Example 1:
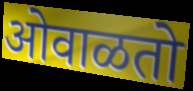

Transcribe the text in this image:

ओवाळतो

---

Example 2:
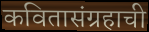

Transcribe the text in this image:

कवितासंग्रहाची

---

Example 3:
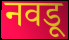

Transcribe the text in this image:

नवडू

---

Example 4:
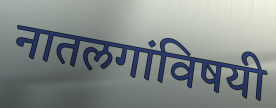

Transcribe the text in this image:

नातलगांविषयी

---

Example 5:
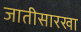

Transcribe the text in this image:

जातीसारखा